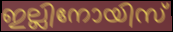
ഇല്ലിനോയിസ്